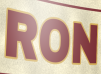
RON